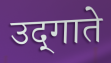
उद्‌गाते